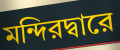
মন্দিরদ্বারে